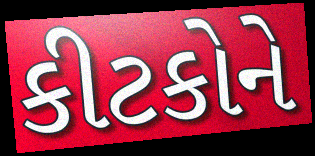
કીટકોને